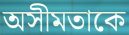
অসীমতাকে